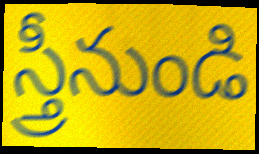
స్త్రీనుండి